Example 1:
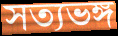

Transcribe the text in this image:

সত্যভঙ্গ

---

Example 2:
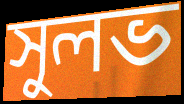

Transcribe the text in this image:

সুলভ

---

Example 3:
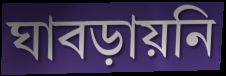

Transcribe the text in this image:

ঘাবড়ায়নি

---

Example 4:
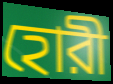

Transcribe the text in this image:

হোরী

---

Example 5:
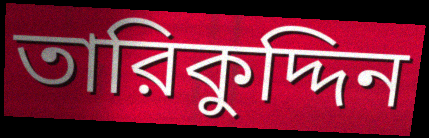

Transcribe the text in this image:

তারিকুদ্দিন